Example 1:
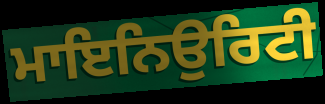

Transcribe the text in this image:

ਮਾਇਨਿਉਰਿਟੀ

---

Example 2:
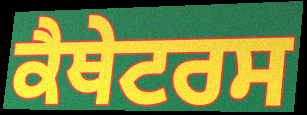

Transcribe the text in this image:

ਕੈਥੇਟਰਸ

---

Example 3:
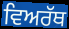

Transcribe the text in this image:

ਵਿਅਰੱਥ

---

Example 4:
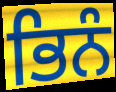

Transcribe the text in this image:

ਭਿਨੰ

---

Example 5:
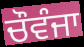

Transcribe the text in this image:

ਚੌਵੰਜਾ